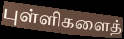
புள்ளிகளைத்